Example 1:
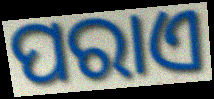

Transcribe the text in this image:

ପରାଏ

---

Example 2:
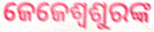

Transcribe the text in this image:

ଜେଜେଶ୍ୱଶୁରଙ୍କ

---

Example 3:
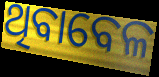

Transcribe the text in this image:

ଥିବାବେଳ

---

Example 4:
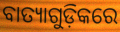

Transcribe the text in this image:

ବାତ୍ୟାଗୁଡ଼ିକରେ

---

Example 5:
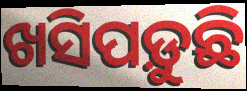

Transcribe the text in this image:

ଖସିପଡ଼ୁଛି